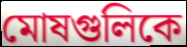
মোষগুলিকে